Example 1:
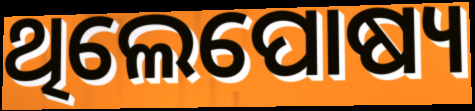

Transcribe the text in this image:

ଥିଲେପୋଷ୍ୟ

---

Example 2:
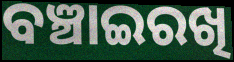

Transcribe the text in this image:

ବଞ୍ଚାଇରଖି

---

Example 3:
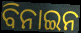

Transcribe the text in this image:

ବିନାଇନ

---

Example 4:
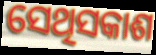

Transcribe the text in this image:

ସେଥିସକାଶ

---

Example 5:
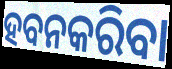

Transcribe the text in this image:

ହବନକରିବା